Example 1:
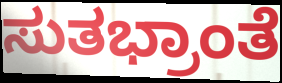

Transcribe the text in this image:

ಸುತಭ್ರಾಂತೆ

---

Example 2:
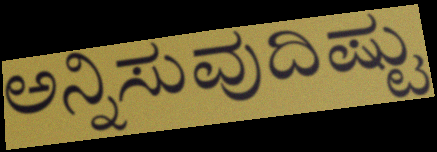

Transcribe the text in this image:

ಅನ್ನಿಸುವುದಿಷ್ಟು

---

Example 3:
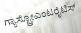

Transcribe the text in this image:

ಗ್ಯಾಸ್ಟ್ರೋಎಂಟರೈಟಿಸ್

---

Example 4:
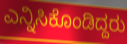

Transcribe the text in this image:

ಎನ್ನಿಸಿಕೊಂಡಿದ್ದರು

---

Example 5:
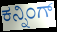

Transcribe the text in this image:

ಕನ್ನಿಂಗ್